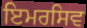
ਇਮਰਸਿਵ